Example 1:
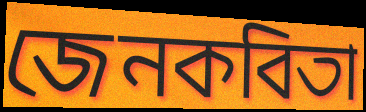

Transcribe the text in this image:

জেনকবিতা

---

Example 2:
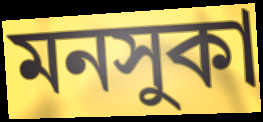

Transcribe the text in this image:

মনসুকা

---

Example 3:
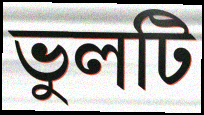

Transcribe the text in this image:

ভুলটি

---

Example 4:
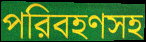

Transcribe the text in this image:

পরিবহণসহ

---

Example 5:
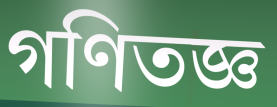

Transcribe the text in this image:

গণিতজ্ঞ